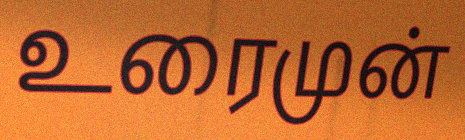
உரைமுன்